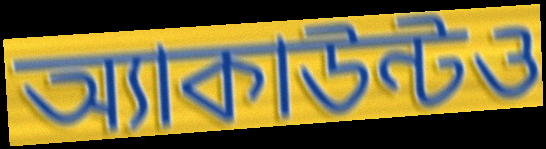
অ্যাকাউন্টও